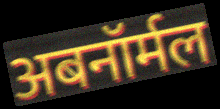
अबनॉर्मल